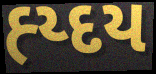
હ્ય્દય